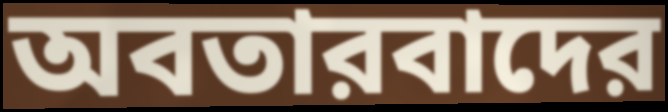
অবতারবাদের